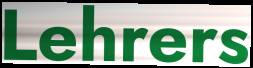
Lehrers